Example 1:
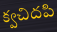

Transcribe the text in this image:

క్వచిదపి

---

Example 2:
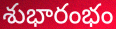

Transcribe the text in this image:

శుభారంభం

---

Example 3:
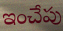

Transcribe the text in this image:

ఇంచేపు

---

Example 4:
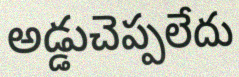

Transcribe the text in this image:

అడ్డుచెప్పలేదు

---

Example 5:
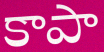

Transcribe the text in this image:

కాపా